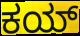
ಕಯ್